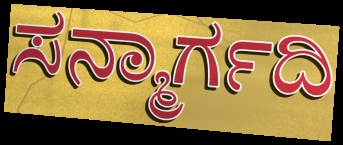
ಸನ್ಮಾರ್ಗದಿ